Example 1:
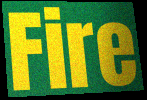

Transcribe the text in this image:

Fire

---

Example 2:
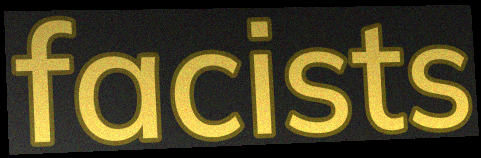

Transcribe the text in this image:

facists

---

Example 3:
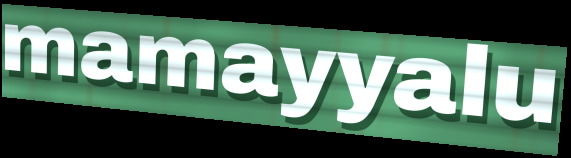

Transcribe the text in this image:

mamayyalu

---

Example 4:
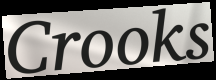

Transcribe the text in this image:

Crooks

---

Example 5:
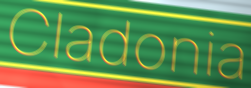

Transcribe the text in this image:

Cladonia